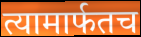
त्यामार्फतच